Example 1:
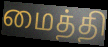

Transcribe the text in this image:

மைத்தி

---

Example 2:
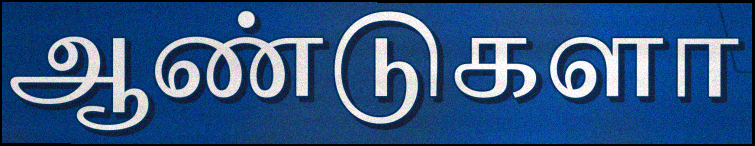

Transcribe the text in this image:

ஆண்டுகளா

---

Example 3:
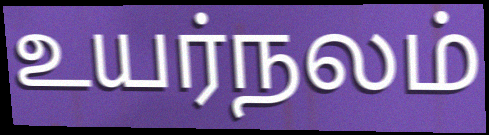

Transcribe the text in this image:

உயர்நலம்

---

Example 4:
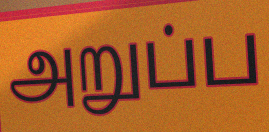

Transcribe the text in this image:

அறுப்ப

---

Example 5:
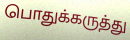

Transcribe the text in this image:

பொதுக்கருத்து